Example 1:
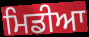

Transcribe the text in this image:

ਮਿਡੀਆ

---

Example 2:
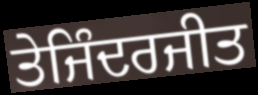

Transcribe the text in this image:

ਤੇਜਿੰਦਰਜੀਤ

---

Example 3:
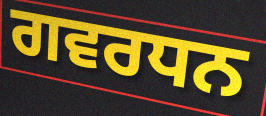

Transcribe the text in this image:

ਗਵਰਧਨ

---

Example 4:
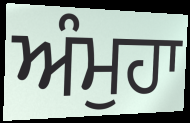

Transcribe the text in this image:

ਅੰਮੁਹਾ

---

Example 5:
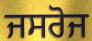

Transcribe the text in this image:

ਜਸਰੋਜ